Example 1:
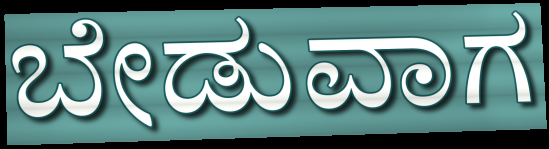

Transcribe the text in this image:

ಬೇಡುವಾಗ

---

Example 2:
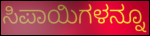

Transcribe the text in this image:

ಸಿಪಾಯಿಗಳನ್ನೂ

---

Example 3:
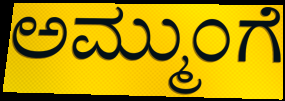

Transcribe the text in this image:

ಅಮ್ಮುಂಗೆ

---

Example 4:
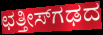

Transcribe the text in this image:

ಛತ್ತೀಸ್‌ಗಢದ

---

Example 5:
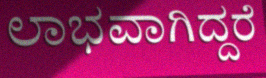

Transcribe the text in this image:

ಲಾಭವಾಗಿದ್ದರೆ